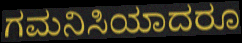
ಗಮನಿಸಿಯಾದರೂ